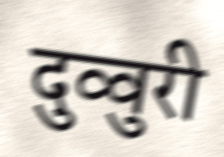
दुव्वुरी